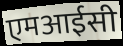
एमआईसी